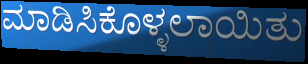
ಮಾಡಿಸಿಕೊಳ್ಳಲಾಯಿತು